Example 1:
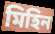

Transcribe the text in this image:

মিহিন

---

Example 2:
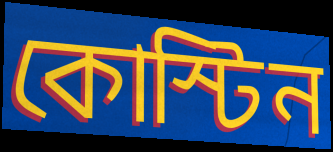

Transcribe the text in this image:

কোস্টিন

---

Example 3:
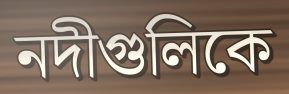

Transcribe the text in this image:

নদীগুলিকে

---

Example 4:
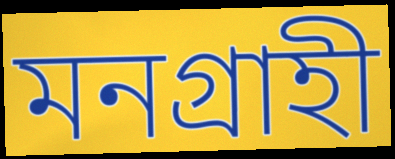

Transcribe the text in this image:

মনগ্রাহী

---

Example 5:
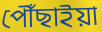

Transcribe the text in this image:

পৌঁছাইয়া